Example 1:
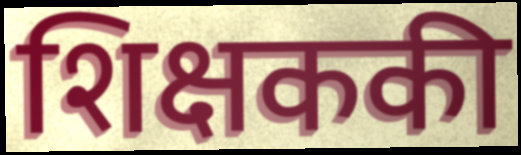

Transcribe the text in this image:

शिक्षककी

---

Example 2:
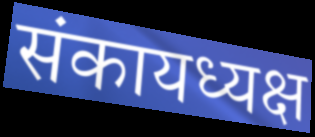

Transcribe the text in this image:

संकायध्यक्ष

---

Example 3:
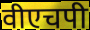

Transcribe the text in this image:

वीएचपी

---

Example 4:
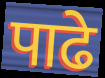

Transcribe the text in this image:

पाढे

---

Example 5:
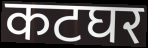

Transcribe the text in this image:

कटघर